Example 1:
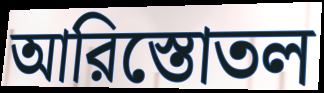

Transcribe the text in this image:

আরিস্তোতল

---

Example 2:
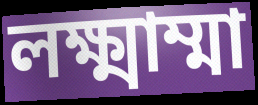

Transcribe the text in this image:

লক্ষ্মাম্মা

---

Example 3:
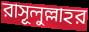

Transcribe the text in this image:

রাসূলুল্লাহর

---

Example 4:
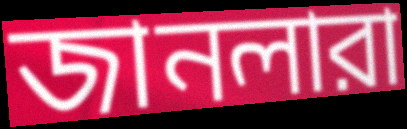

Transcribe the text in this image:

জানলারা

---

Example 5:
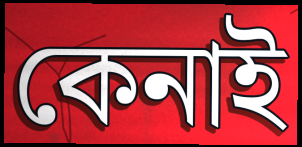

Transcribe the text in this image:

কেনাই